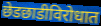
छेडछाडीविरोधात